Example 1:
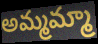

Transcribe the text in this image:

అమ్మమ్మా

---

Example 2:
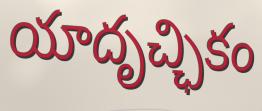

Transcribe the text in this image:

యాదృచ్ఛికం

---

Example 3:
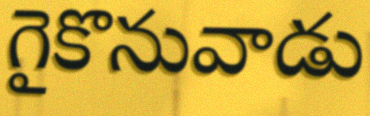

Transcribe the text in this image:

గైకొనువాడు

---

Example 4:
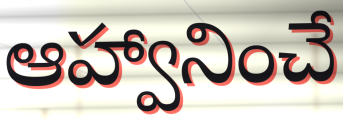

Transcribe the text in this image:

ఆహ్వానించే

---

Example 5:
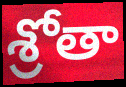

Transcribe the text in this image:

శ్రోతా